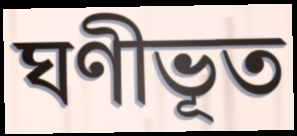
ঘণীভূত